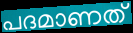
പദമാണത്